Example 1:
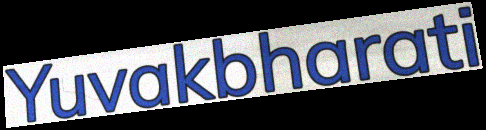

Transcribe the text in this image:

Yuvakbharati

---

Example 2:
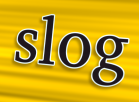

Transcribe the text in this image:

slog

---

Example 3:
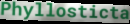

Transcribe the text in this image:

Phyllosticta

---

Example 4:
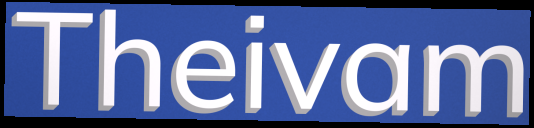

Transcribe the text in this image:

Theivam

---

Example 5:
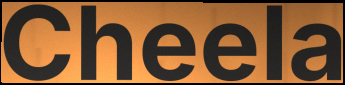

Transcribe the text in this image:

Cheela